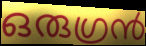
ഒരുഗ്രൻ